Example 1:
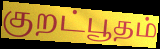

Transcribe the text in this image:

குறட்பூதம்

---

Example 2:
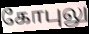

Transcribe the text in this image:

கோபுலு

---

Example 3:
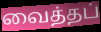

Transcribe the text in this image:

வைத்தப்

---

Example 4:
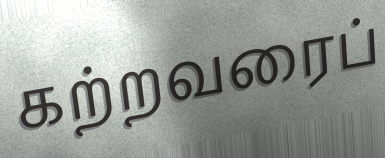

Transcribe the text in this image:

கற்றவரைப்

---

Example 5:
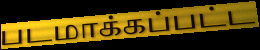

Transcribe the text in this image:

படமாக்கப்பட்ட